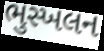
ભુસ્ખલન